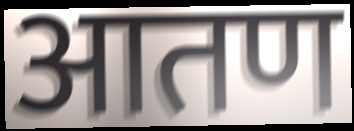
आतण